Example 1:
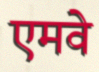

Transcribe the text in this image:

एमवे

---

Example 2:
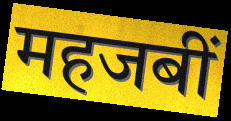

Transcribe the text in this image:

महजबीं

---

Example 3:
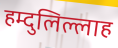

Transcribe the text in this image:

हम्दुलिल्लाह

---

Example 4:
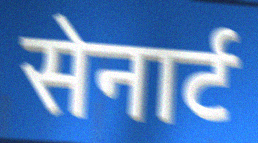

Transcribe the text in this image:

सेनार्ट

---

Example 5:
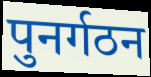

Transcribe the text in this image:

पुनर्गठन